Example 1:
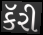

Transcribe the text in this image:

કૅરી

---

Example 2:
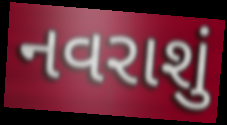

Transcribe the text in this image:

નવરાશું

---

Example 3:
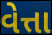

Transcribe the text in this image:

વેત્તા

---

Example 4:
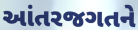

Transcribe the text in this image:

આંતરજગતને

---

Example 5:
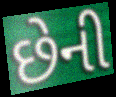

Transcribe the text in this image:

છેની